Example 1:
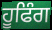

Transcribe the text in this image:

ਹੂਫਿੰਗ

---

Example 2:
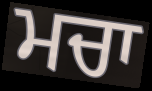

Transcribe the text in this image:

ਮਚਾ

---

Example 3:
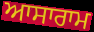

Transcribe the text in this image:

ਆਸਾਰਾਮ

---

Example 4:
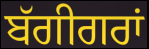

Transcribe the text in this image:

ਬੱਗੀਗਰਾਂ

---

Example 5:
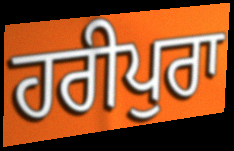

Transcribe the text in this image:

ਹਰੀਪੁਰਾ